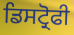
ਡਿਸਟ੍ਰੋਫੀ